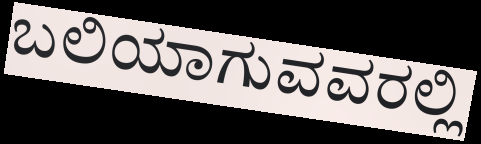
ಬಲಿಯಾಗುವವರಲ್ಲಿ